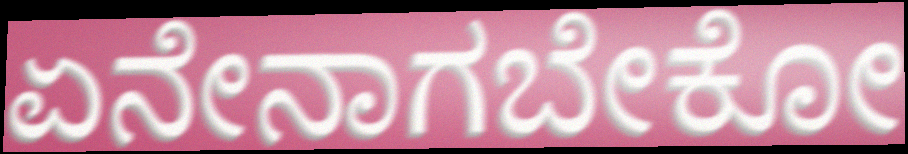
ಏನೇನಾಗಬೇಕೋ